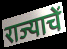
राज्याचें